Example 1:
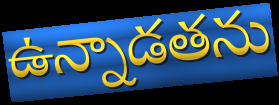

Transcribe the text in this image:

ఉన్నాడతను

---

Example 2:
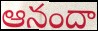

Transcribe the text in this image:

ఆనందా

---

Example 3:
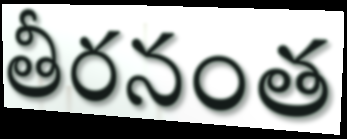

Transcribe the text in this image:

తీరనంత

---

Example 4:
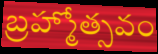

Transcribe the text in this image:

బ్రహ్మోత్సవం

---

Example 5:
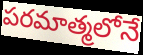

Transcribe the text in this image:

పరమాత్మలోనే